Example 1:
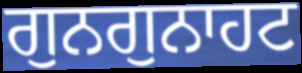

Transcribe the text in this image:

ਗੁਨਗੁਨਾਹਟ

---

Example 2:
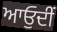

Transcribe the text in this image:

ਆਓੁਦੀਂ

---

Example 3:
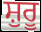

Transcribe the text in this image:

ਸ਼ੁਰੂ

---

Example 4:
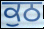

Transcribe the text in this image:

ਕੁਠ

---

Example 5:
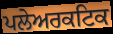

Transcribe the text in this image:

ਪਲੇਅਰਕਟਿਕ